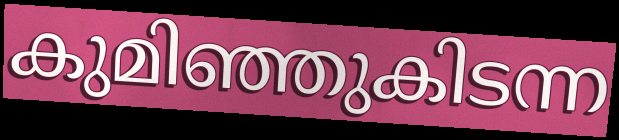
കുമിഞ്ഞുകിടന്ന